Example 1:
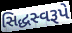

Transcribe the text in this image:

સિદ્ધસ્વરૂપે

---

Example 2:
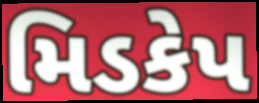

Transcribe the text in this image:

મિડકેપ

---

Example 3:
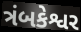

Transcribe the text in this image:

ત્રંબકેશ્વર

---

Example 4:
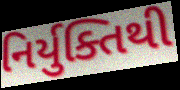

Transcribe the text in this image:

નિર્યુક્તિથી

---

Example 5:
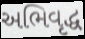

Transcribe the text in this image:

અભિવૃદ્ધ